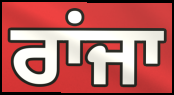
ਰਾਂਜਾ